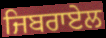
ਜਿਬਰਾਏਲ